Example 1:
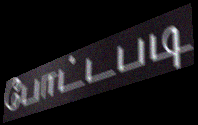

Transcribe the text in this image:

போட்டபடி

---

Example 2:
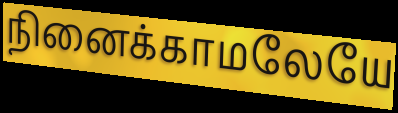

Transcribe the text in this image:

நினைக்காமலேயே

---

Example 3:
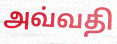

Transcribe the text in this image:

அவ்வதி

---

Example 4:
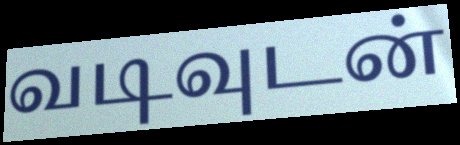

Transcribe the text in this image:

வடிவுடன்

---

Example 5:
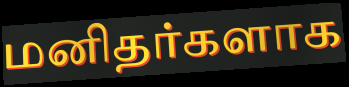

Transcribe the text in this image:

மனிதர்களாக